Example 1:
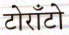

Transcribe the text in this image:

टोरॉंटो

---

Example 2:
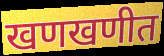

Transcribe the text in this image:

खणखणीत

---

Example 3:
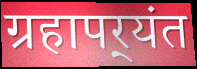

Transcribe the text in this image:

ग्रहापर्यंत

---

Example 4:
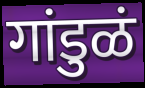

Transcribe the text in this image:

गांडुळं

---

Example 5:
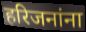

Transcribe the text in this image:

हरिजनांना